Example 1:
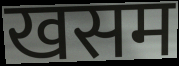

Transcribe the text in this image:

खसम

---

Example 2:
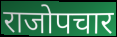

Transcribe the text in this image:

राजोपचार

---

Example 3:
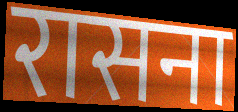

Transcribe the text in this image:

रासना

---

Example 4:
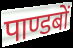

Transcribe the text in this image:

पाण्डबों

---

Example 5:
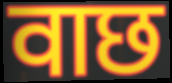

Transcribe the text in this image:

वाछ